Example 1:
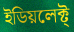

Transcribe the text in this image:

ইডিয়লেক্ট্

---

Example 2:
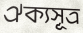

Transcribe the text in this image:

ঐক্যসূত্র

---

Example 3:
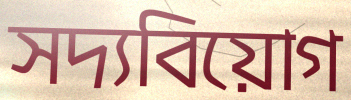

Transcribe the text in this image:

সদ্যবিয়োগ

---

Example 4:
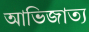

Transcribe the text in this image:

আভিজাত্য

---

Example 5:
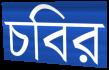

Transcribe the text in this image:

চবির